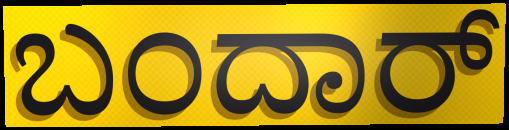
ಬಂದಾರ್